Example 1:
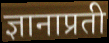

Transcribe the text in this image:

ज्ञानाप्रती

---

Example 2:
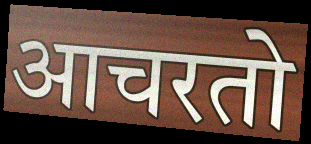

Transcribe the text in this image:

आचरतो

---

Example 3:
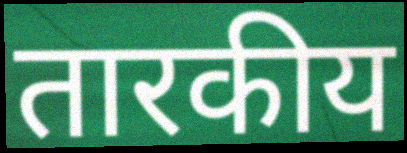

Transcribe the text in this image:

तारकीय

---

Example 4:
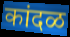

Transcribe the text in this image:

कांदळ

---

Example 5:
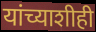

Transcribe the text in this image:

यांच्याशीही